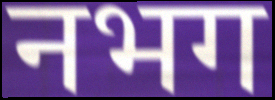
नभग